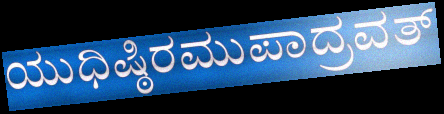
ಯುಧಿಷ್ಠಿರಮುಪಾದ್ರವತ್